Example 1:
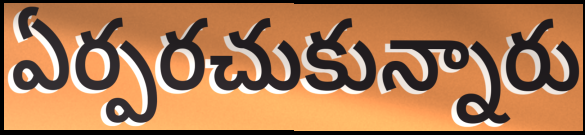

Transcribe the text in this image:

ఏర్పరచుకున్నారు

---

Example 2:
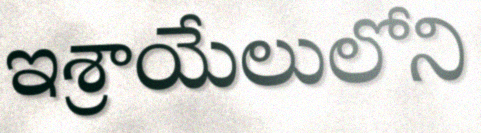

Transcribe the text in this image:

ఇశ్రాయేలులోని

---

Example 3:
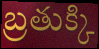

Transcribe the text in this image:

బ్రతుక్కి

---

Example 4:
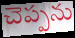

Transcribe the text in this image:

చెప్పను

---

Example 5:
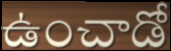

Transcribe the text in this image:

ఉంచాడో